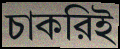
চাকরিই